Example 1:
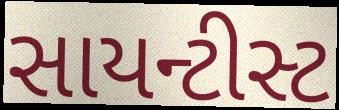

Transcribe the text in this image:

સાયન્ટીસ્ટ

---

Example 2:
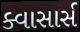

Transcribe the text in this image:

ક્વાસાર્સ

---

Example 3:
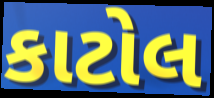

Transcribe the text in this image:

કાટોલ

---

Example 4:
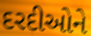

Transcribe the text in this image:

દરદીઓને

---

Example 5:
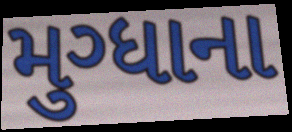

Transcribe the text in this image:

મુગ્ધાના